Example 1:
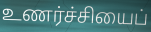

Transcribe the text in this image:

உணர்ச்சியைப்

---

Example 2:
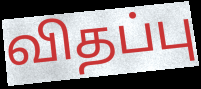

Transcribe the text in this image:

விதப்பு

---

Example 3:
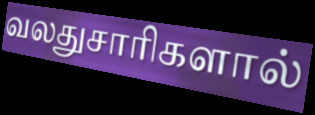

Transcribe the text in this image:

வலதுசாரிகளால்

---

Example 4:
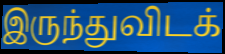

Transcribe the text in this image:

இருந்துவிடக்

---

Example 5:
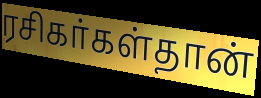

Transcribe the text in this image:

ரசிகர்கள்தான்